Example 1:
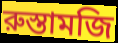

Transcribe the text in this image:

রুস্তামজি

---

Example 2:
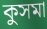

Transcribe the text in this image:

কুসমা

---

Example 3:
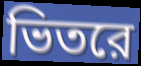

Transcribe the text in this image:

ভিতরে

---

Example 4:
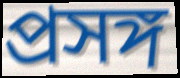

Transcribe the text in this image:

প্রসঙ্গ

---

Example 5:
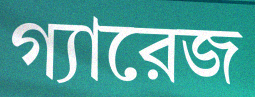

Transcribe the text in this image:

গ্যারেজ